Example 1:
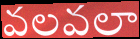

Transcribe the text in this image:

వలవలా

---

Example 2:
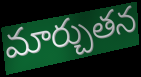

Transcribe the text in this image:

మార్చుతన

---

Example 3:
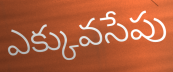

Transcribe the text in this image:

ఎక్కువసేపు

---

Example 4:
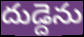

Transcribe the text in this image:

దుడ్దెను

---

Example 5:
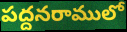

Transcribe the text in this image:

పద్దనరాములో